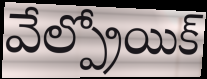
వేల్ప్రోయిక్